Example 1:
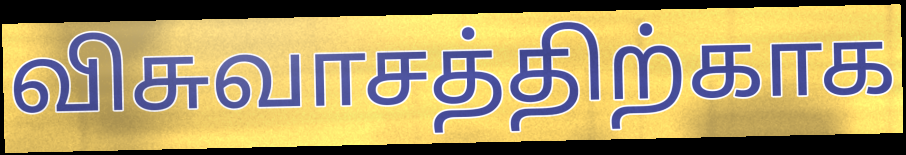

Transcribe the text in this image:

விசுவாசத்திற்காக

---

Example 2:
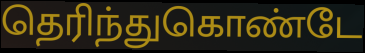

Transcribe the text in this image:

தெரிந்துகொண்டே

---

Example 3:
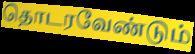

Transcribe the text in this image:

தொடரவேண்டும்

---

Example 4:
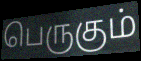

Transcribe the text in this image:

பெருகும்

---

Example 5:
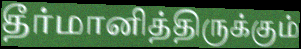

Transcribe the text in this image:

தீர்மானித்திருக்கும்